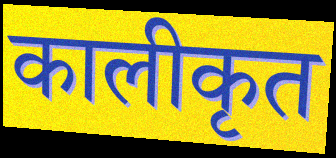
कालीकृत